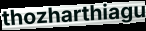
thozharthiagu